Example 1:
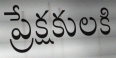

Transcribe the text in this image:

ప్రేక్షకులకి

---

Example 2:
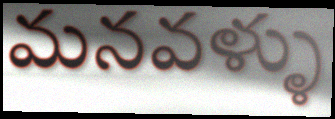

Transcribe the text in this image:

మనవళ్ళు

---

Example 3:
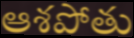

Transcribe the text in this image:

ఆశపోతు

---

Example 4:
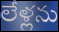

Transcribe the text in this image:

లేళ్లను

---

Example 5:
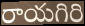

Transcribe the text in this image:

రాయగిరి